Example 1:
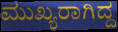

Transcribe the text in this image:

ಮುಖ್ಯರಾಗಿದ್ದ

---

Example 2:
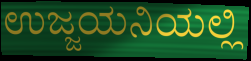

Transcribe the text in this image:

ಉಜ್ಜಯನಿಯಲ್ಲಿ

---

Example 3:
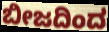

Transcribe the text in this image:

ಬೀಜದಿಂದ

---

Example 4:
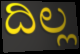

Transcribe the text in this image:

ದಿಲ್ಲ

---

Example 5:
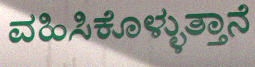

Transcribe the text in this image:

ವಹಿಸಿಕೊಳ್ಳುತ್ತಾನೆ